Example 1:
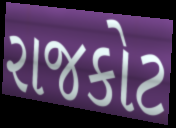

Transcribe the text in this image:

રાજકોટ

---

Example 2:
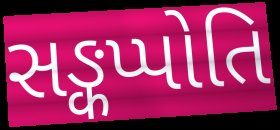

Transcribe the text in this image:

સઙ્કપ્પોતિ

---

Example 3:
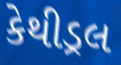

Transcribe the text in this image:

કેથીડ્રલ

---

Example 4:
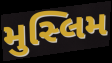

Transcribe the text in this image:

મુસ્લિમ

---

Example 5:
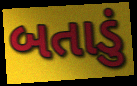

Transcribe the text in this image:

બતાડું